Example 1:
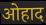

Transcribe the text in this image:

ओहाद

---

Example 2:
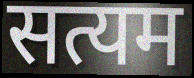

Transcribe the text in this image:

सत्यम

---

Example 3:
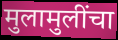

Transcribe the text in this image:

मुलामुलींचा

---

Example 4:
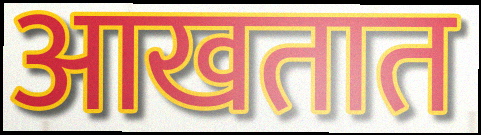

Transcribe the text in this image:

आखतात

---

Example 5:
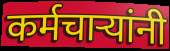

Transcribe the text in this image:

कर्मचाऱ्यांनी